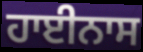
ਹਾਈਨਾਸ